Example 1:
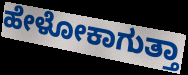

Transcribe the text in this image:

ಹೇಳೋಕಾಗುತ್ತಾ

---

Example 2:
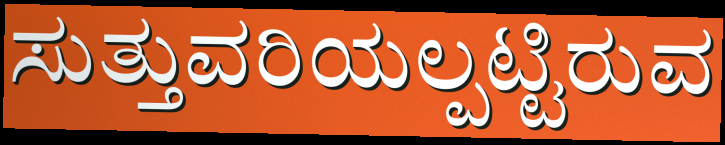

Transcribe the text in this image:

ಸುತ್ತುವರಿಯಲ್ಪಟ್ಟಿರುವ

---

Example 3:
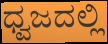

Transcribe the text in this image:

ಧ್ವಜದಲ್ಲಿ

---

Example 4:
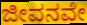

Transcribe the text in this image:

ಜೀವನವೇ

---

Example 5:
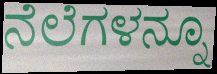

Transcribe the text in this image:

ನೆಲೆಗಳನ್ನೂ